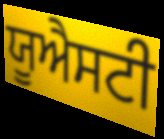
ਯੂਐਸਟੀ